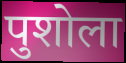
पुशोला